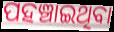
ପହଞ୍ଚାଇଥିବା